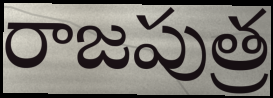
రాజపుత్ర